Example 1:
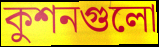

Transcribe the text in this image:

কুশনগুলো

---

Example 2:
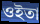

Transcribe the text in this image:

ওইতা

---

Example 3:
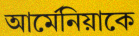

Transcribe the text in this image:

আর্মেনিয়াকে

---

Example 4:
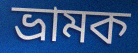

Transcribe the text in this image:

ভ্রামক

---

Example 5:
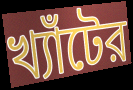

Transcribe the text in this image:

খ্যাঁটের